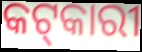
କଟ୍‌କାରୀ